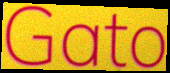
Gato